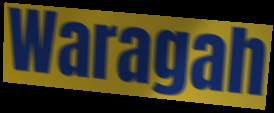
Waragah